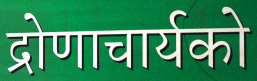
द्रोणाचार्यको